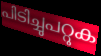
പിടിച്ചുപറ്റുക